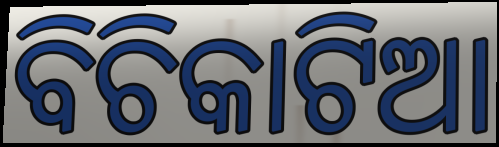
ବିଚିକାଟିଆ